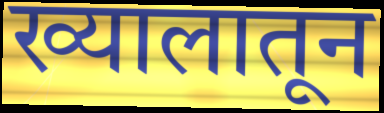
ख्यालातून